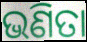
ଭଣିତା